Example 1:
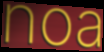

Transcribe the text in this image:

noa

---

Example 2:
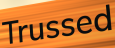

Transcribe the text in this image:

Trussed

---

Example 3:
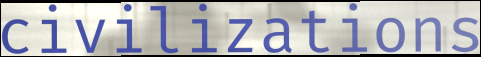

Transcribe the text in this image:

civilizations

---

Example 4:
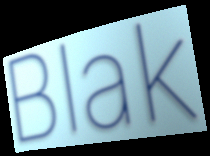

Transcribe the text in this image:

Blak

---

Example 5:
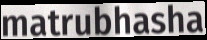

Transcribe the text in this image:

matrubhasha